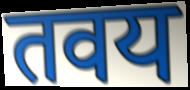
तवय